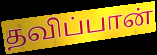
தவிப்பான்